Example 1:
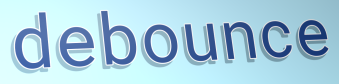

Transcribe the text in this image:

debounce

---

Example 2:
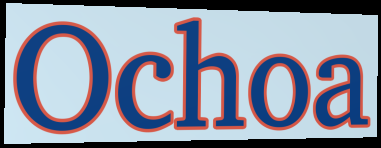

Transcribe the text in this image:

Ochoa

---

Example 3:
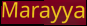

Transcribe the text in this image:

Marayya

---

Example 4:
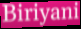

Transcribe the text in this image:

Biriyani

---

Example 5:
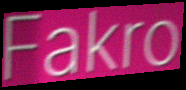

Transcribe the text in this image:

Fakro